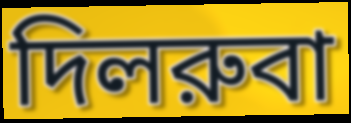
দিলরুবা